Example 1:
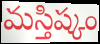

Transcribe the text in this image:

మస్తిష్కం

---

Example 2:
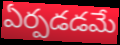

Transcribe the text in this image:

ఏర్పడడమే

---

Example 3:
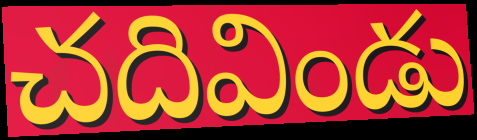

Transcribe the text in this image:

చదివిండు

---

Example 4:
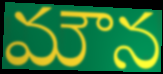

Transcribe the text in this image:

మౌన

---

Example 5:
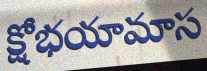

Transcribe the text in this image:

క్షోభయామాస